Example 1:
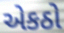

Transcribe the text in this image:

એકઠો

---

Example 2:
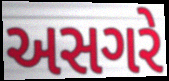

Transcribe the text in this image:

અસગરે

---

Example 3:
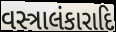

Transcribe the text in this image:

વસ્ત્રાલંકારાદિ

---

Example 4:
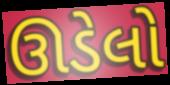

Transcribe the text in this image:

ઊડેલો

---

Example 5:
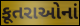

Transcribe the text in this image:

કૂતરાઓનાં